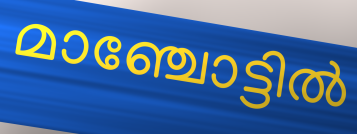
മാഞ്ചോട്ടിൽ